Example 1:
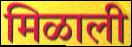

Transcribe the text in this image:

मिळाली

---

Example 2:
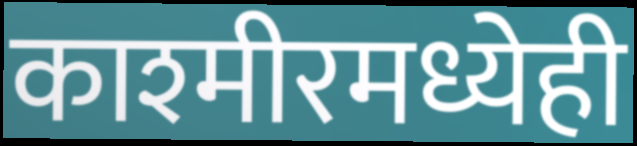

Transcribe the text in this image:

काश्‍मीरमध्येही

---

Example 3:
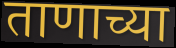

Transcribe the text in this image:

ताणाच्या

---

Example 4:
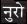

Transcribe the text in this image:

नुरो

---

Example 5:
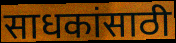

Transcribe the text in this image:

साधकांसाठी